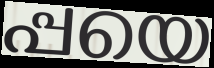
പ്പയെ